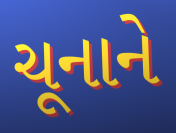
ચૂનાને